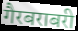
गैरबराबरी